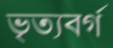
ভৃত্যবর্গ